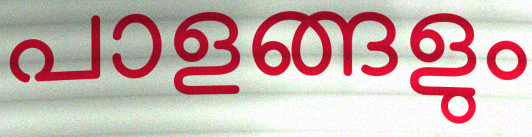
പാളങ്ങളും